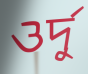
ওর্দু